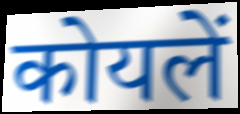
कोयलें